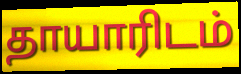
தாயாரிடம்